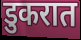
डुकरात